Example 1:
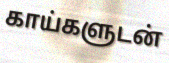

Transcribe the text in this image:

காய்களுடன்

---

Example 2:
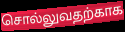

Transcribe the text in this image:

சொல்லுவதற்காக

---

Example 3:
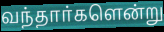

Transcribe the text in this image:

வந்தார்களென்று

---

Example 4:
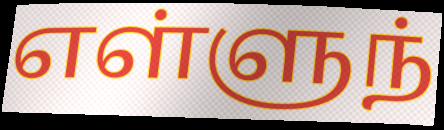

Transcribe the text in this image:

எள்ளுந்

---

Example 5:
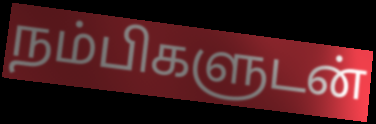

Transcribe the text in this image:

நம்பிகளுடன்